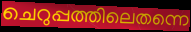
ചെറുപ്പത്തിലെതന്നെ